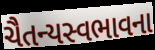
ચૈતન્યસ્વભાવના